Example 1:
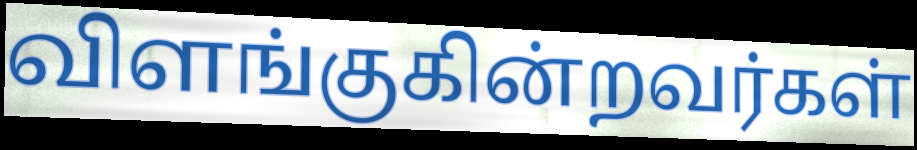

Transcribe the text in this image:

விளங்குகின்றவர்கள்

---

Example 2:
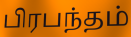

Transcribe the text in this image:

பிரபந்தம்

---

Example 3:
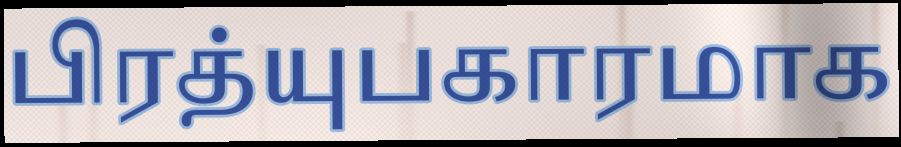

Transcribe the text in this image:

பிரத்யுபகாரமாக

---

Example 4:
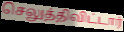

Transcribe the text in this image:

செலுத்திவிட்டார்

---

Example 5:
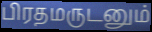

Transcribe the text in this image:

பிரதமருடனும்